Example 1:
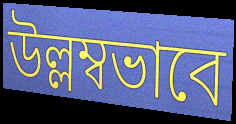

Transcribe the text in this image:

উল্লম্বভাবে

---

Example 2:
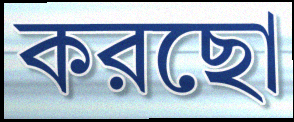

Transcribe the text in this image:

করছো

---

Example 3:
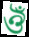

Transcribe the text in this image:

ঔঁ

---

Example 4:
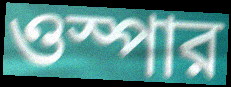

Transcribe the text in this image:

ওস্পার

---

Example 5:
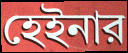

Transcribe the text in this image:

হেইনার